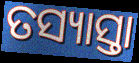
ତସ୍ୟାସ୍ତା